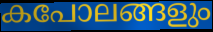
കപോലങ്ങളും